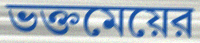
ভক্তমেয়ের